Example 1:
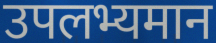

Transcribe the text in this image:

उपलभ्यमान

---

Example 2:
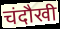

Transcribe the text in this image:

चंदौखी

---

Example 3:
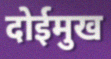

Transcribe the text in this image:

दोईमुख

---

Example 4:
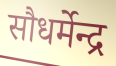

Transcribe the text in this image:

सौधर्मेन्द्र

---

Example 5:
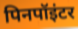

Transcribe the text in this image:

पिनपॉइंटर